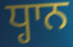
ਧ੍ਹਾਨ